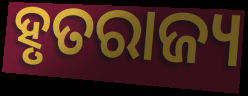
ହୃତରାଜ୍ୟ